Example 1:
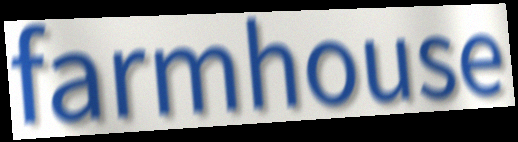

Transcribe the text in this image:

farmhouse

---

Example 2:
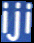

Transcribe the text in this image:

iji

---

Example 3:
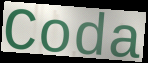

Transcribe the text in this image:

Coda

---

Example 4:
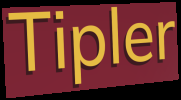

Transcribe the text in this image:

Tipler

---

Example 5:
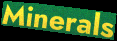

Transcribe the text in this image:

Minerals